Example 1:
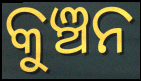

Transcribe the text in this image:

କୁଞ୍ଚନ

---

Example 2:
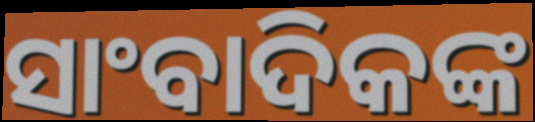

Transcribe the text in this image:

ସାଂବାଦିକଙ୍କ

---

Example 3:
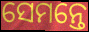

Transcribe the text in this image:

ସେମନ୍ତେ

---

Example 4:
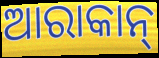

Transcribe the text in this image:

ଆରାକାନ୍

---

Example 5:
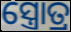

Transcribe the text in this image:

ସ୍ତ୍ରୋତ୍ର